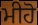
ਮੀਹੋ